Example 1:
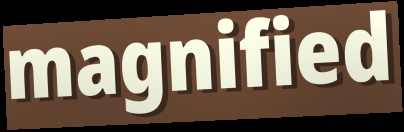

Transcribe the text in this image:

magnified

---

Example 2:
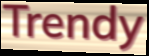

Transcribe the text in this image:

Trendy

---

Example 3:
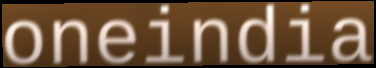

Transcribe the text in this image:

oneindia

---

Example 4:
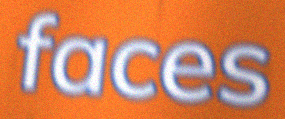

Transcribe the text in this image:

faces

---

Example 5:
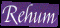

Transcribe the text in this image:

Rehum